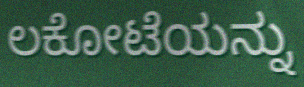
ಲಕೋಟೆಯನ್ನು